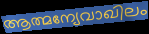
ആത്മന്യേവാഖിലം